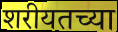
शरीयतच्या